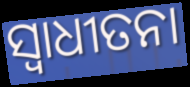
ସ୍ବାଧୀତନା